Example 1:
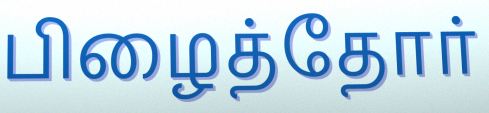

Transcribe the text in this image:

பிழைத்தோர்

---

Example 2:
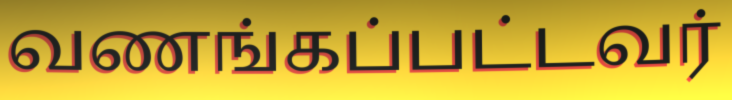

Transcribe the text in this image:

வணங்கப்பட்டவர்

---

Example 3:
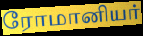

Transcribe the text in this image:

ரோமானியர்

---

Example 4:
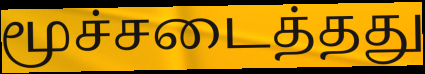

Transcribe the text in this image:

மூச்சடைத்தது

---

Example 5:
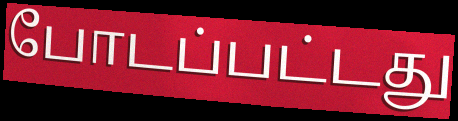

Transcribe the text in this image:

போடப்பட்டது